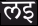
लइ